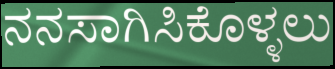
ನನಸಾಗಿಸಿಕೊಳ್ಳಲು